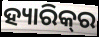
ହ୍ୟାରିକ୍‌ର